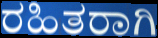
ರಹಿತರಾಗಿ